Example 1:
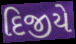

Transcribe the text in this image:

દિજીયે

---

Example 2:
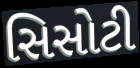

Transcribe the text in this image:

સિસોટી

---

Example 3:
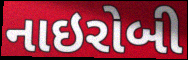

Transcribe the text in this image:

નાઇરોબી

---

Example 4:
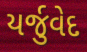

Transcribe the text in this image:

યર્જુવેદ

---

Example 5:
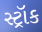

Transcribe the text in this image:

સ્ટ્રૉક